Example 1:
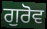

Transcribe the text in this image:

ਗੁਰੋਵ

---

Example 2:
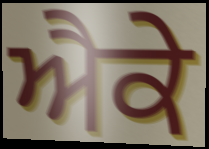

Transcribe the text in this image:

ਐਕੇ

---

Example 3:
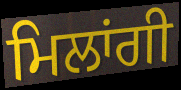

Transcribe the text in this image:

ਮਿਲਾਂਗੀ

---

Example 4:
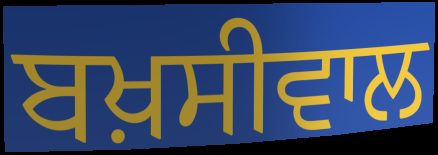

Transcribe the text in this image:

ਬਖ਼ਸੀਵਾਲ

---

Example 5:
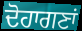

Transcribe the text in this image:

ਦੋਹਾਗਣਾਂ